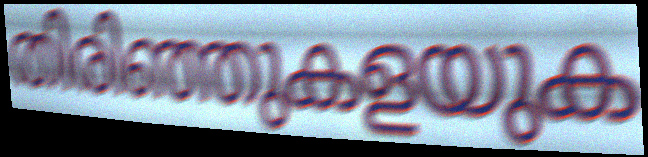
തിരിഞ്ഞുകളയുക